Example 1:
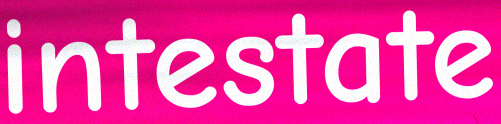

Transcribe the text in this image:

intestate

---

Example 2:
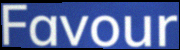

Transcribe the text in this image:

Favour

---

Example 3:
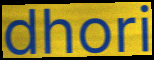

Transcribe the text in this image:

dhori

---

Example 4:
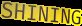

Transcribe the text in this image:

SHINING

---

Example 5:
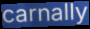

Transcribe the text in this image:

carnally